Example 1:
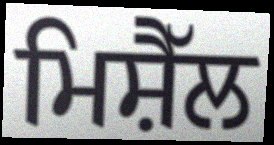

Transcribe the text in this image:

ਮਿਸ਼ੈੱਲ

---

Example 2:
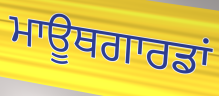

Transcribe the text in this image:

ਮਾਊਥਗਾਰਡਾਂ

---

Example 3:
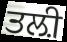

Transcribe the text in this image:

ਤਲ਼ੀ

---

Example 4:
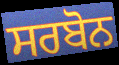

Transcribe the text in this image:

ਸਰਬੋਨ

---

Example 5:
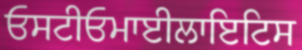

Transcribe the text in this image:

ਓਸਟੀਓਮਾਈਲਾਇਟਿਸ